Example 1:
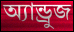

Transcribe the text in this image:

অ্যান্ড্রুজ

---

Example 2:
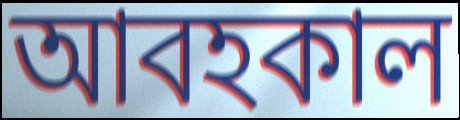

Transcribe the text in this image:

আবহকাল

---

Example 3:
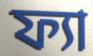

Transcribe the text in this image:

ফ্যা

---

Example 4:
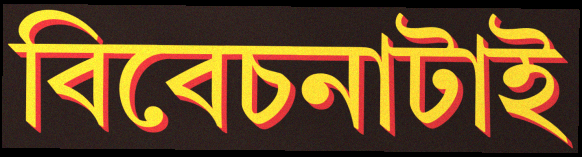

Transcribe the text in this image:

বিবেচনাটাই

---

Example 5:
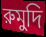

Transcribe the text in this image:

রুমুদি